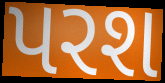
પરશ